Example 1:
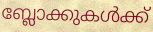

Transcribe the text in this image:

ബ്ലോക്കുകൾക്ക്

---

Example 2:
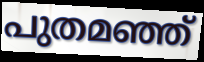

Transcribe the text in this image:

പുതമഞ്ഞ്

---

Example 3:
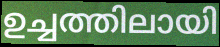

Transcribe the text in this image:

ഉച്ചത്തിലായി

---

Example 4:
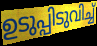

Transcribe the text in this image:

ഉടുപ്പിടുവിച്ച്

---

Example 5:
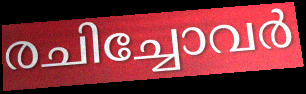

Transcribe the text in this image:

രചിച്ചോവർ